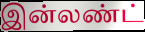
இன்லண்ட்